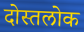
दोस्तलोक